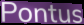
Pontus